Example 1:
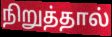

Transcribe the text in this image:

நிறுத்தால்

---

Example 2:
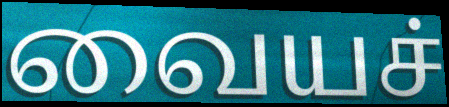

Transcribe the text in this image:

வையச்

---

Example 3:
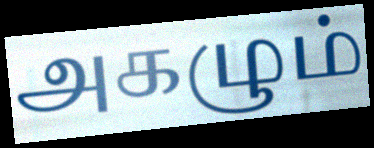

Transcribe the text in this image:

அகழும்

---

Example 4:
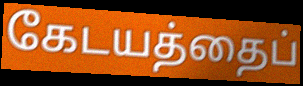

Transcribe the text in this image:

கேடயத்தைப்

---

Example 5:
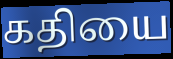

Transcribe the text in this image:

கதியை